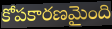
కోపకారణమైంది